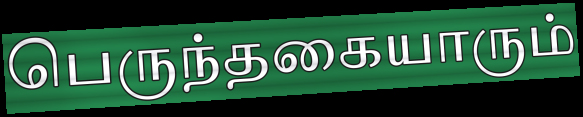
பெருந்தகையாரும்